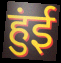
हुंई